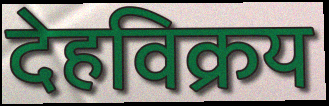
देहविक्रय